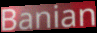
Banian